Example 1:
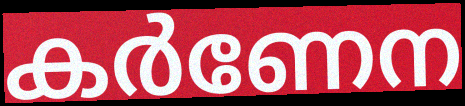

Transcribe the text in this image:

കർണേന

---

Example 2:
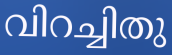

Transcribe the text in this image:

വിറച്ചിതു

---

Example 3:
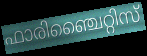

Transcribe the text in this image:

ഫാരിഞ്ചൈറ്റിസ്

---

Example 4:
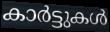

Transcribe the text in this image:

കാർട്ടുകൾ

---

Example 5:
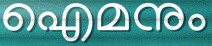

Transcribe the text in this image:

ഐമനും